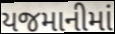
યજમાનીમાં